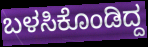
ಬಳಸಿಕೊಂಡಿದ್ದ